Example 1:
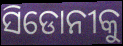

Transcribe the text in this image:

ସିଡୋନୀକୁ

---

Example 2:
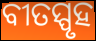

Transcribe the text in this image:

ବୀତସ୍ପୃହ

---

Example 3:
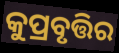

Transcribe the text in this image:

କୁପ୍ରବୃତ୍ତିର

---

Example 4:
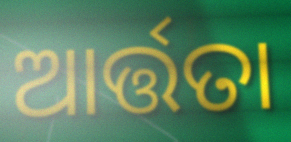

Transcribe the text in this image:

ଆର୍ତ୍ତତା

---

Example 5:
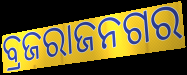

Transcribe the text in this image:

ବ୍ରଜରାଜନଗର